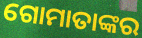
ଗୋମାତାଙ୍କର